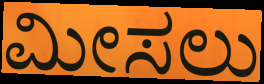
ಮೀಸಲು